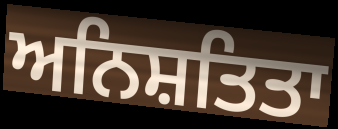
ਅਨਿਸ਼ਤਿਤਾ